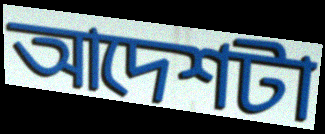
আদেশটা